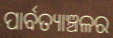
ପାର୍ବତ୍ୟାଞ୍ଚଳର